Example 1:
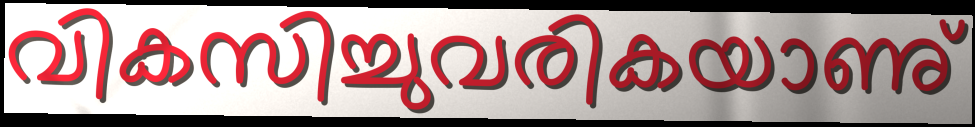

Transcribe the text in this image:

വികസിച്ചുവരികയാണു്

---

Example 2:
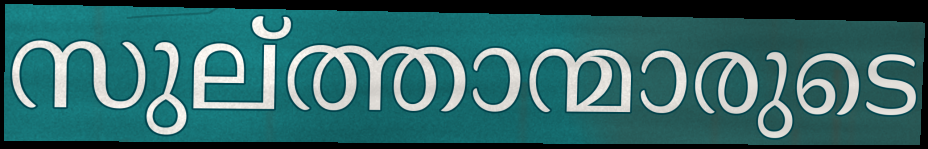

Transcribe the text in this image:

സുല്ത്താന്മാരുടെ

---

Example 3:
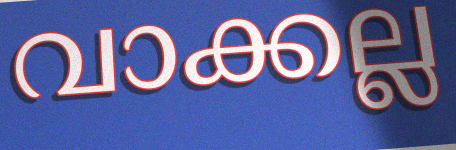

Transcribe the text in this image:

വാക്കല്ല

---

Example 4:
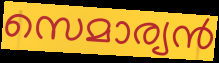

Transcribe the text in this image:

സെമാര്യൻ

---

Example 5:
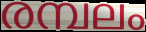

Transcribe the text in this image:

രമ്പലം